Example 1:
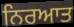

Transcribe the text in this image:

ਨਿਰਆਤ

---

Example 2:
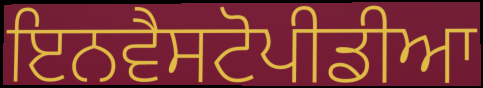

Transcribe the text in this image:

ਇਨਵੈਸਟੋਪੀਡੀਆ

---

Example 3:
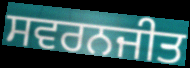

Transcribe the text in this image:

ਸਵਰਨਜੀਤ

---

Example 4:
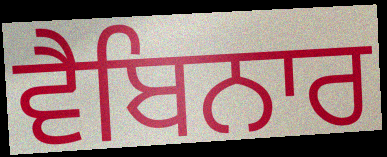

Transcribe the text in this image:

ਵੈਬਿਨਾਰ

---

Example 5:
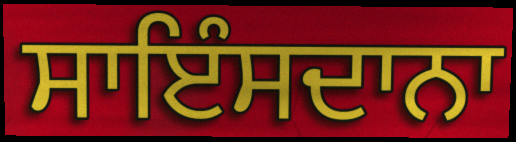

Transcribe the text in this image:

ਸਾਇੰਸਦਾਨਾ